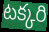
టక్కరి